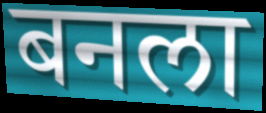
बनला